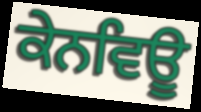
ਕੇਨਵਿਊ